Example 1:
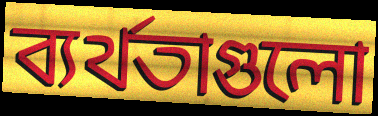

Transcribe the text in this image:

ব্যর্থতাগুলো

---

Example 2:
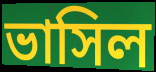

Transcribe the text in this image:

ভাসিল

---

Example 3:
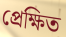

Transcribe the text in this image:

প্রেক্ষিত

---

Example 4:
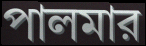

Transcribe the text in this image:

পালমার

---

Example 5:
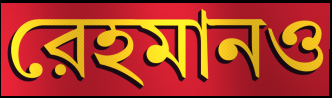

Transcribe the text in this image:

রেহমানও